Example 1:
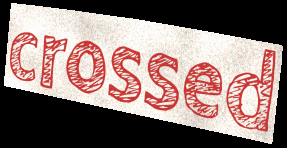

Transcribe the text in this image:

crossed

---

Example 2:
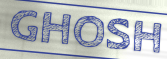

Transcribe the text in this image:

GHOSH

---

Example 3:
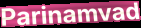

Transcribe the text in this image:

Parinamvad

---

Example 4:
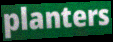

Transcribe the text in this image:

planters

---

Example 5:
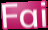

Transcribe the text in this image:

Fai